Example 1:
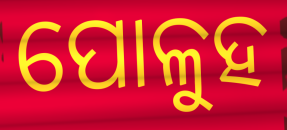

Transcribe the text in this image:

ପୋଳୁହ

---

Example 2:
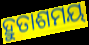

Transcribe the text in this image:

ହୁତାଶମୟ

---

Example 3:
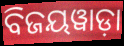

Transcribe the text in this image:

ବିଜୟୱାଡ଼ା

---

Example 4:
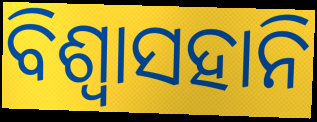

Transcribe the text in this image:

ବିଶ୍ବାସହାନି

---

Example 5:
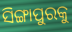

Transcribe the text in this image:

ସିଙ୍ଗାପୁରକୁ